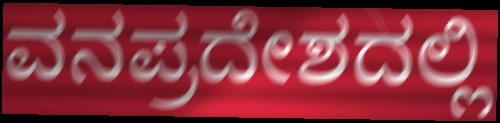
ವನಪ್ರದೇಶದಲ್ಲಿ